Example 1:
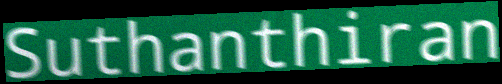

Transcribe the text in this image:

Suthanthiran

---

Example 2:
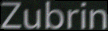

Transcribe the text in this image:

Zubrin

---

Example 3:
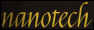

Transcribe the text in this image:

nanotech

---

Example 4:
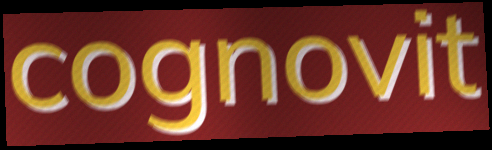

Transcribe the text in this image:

cognovit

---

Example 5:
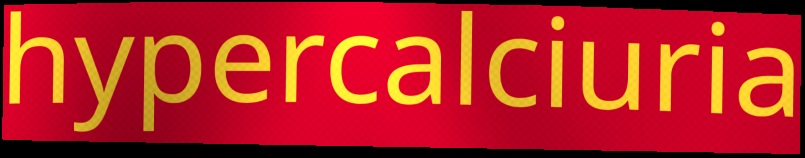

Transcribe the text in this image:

hypercalciuria